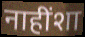
नाहींशा